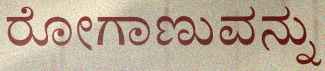
ರೋಗಾಣುವನ್ನು